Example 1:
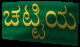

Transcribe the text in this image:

ಚಟ್ಟಿಯ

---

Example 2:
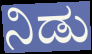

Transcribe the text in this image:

ನಿಡು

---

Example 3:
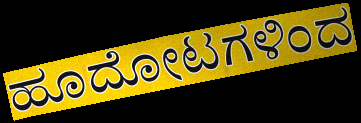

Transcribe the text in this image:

ಹೂದೋಟಗಳಿಂದ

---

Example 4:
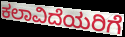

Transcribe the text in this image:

ಕಲಾವಿದೆಯರಿಗೆ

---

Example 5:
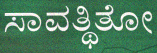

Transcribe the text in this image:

ಸಾವತ್ಥಿತೋ